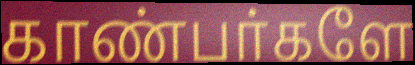
காண்பர்களே